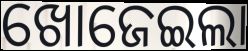
ଖୋଜେଇଲା